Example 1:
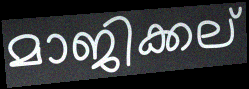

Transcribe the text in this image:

മാജിക്കല്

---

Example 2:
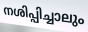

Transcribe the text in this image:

നശിപ്പിച്ചാലും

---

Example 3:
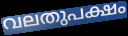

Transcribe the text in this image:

വലതുപക്ഷം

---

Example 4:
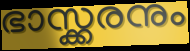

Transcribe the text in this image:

ഭാസ്ക്കരനും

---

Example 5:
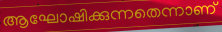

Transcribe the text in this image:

ആഘോഷിക്കുന്നതെന്നാണ്